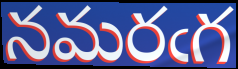
నమరఁగ